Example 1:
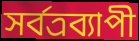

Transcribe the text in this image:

সর্বত্রব্যাপী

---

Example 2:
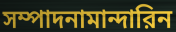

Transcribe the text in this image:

সম্পাদনামান্দারিন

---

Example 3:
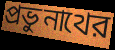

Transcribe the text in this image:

প্রভুনাথের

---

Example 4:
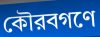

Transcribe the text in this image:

কৌরবগণে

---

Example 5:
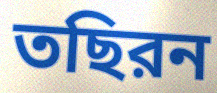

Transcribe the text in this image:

তছিরন